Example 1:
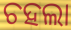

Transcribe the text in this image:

ଚହଲା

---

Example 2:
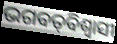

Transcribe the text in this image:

ଭଗବତ୍‌ବିଶ୍ଵାସୀ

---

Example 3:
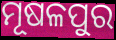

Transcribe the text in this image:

ମୂଷଳପୁର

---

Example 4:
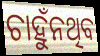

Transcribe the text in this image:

ଚାହୁଁନଥିବ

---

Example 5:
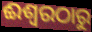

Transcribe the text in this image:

ଈଶ୍ୱରଠାରୁ